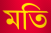
মতি